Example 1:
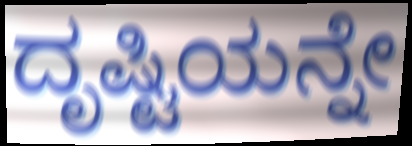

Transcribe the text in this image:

ದೃಷ್ಟಿಯನ್ನೇ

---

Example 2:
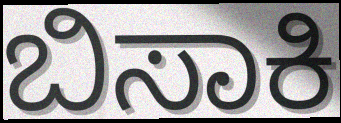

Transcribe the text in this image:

ಬಿಸಾಕಿ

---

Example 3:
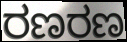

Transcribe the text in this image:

ರಣರಣ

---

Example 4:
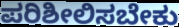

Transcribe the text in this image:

ಪರಿಶೀಲಿಸಬೇಕು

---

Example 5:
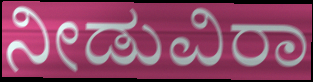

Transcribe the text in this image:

ನೀಡುವಿರಾ